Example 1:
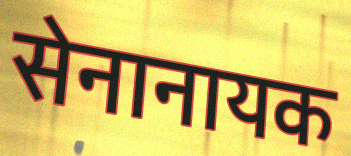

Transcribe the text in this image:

सेनानायक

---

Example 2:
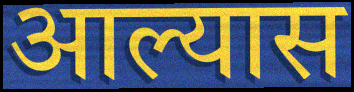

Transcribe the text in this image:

आल्यास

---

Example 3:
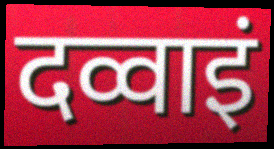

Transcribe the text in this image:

दव्वाइं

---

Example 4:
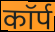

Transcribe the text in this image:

कॉर्प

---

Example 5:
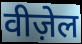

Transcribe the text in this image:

वीज़ेल